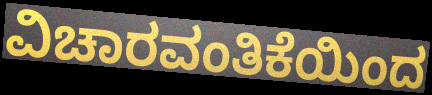
ವಿಚಾರವಂತಿಕೆಯಿಂದ